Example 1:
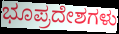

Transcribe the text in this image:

ಭೂಪ್ರದೇಶಗಳು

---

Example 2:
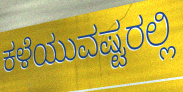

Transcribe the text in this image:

ಕಳೆಯುವಷ್ಟರಲ್ಲಿ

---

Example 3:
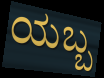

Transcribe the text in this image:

ಯಬ್ಬ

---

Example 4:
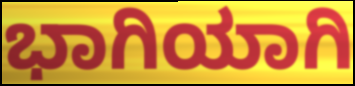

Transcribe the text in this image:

ಭಾಗಿಯಾಗಿ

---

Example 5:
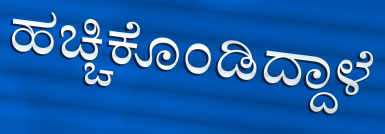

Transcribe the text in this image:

ಹಚ್ಚಿಕೊಂಡಿದ್ದಾಳೆ